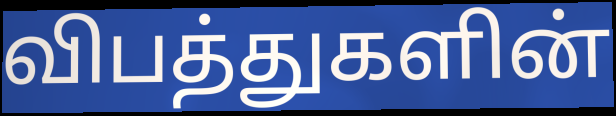
விபத்துகளின்